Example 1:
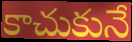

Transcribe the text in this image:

కాచుకునే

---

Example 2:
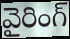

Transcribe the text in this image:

వైరింగ్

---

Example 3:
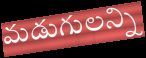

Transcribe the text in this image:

మడుగులన్ని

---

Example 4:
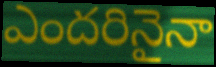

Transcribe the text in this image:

ఎందరినైనా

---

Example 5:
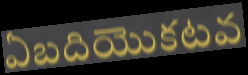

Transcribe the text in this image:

ఏబదియొకటవ